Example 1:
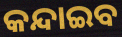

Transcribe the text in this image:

କନ୍ଦାଇବ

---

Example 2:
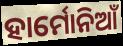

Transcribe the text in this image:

ହାର୍ମୋନିଆଁ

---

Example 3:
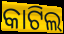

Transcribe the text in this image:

କାଟିଲ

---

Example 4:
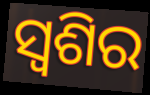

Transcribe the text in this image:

ସ୍ଵଶିର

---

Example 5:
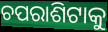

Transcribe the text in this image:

ଚପରାଶିଟାକୁ